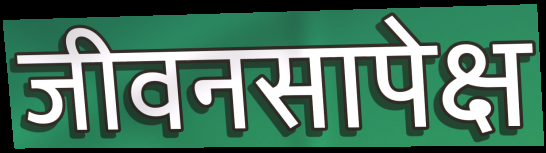
जीवनसापेक्ष